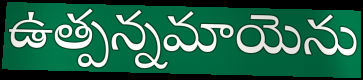
ఉత్పన్నమాయెను